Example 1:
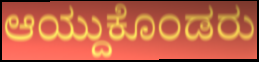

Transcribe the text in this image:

ಆಯ್ದುಕೊಂಡರು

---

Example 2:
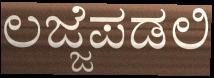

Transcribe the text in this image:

ಲಜ್ಜೆಪಡಲಿ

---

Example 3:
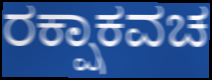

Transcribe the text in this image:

ರಕ್ಷಾಕವಚ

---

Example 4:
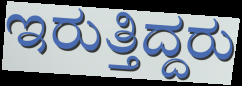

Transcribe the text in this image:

ಇರುತ್ತಿದ್ದರು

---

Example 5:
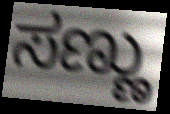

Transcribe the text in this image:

ಸಣ್ಣು